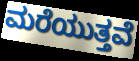
ಮರೆಯುತ್ತವೆ